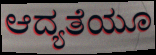
ಆದ್ಯತೆಯೂ